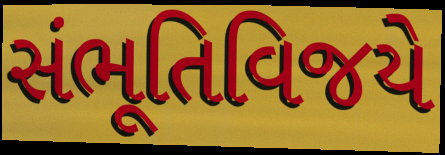
સંભૂતિવિજયે